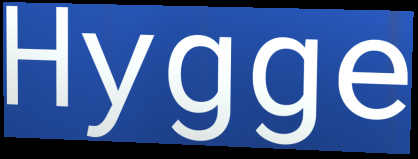
Hygge